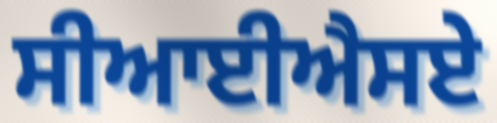
ਸੀਆਈਐਸਏ